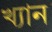
খ্যান